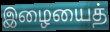
இழையைத்